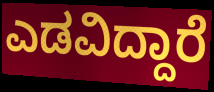
ಎಡವಿದ್ದಾರೆ